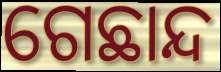
ଗେଛାନ୍ଦ